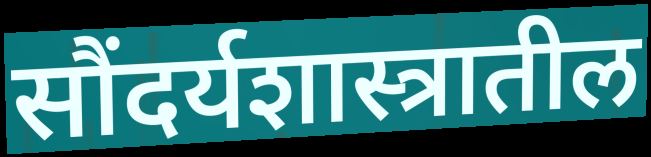
सौंदर्यशास्त्रातील